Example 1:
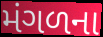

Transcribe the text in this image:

મંગળના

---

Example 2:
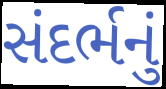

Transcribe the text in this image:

સંદર્ભનું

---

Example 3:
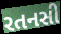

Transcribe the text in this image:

રતનસી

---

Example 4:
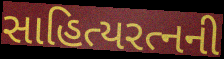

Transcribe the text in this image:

સાહિત્યરત્નની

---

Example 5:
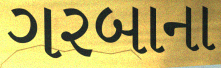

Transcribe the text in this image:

ગરબાના